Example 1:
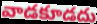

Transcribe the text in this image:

వాడకూడదు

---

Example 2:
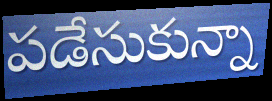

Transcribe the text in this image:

పడేసుకున్నా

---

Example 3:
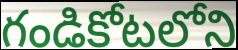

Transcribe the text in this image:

గండికోటలోని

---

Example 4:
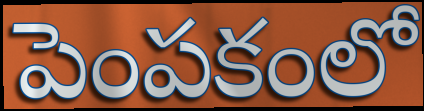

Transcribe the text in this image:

పెంపకంలో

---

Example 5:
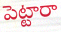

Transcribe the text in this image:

పెట్టారా